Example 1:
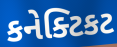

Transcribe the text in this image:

કનેક્ટિકટ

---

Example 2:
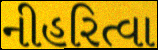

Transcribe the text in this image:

નીહરિત્વા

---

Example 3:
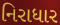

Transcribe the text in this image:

નિરાધાર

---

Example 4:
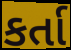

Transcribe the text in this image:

કર્તા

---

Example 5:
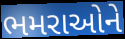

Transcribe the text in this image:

ભમરાઓને